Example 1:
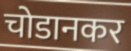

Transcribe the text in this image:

चोडानकर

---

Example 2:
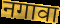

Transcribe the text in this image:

नगावा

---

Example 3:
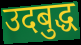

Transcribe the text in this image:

उदबुद्ध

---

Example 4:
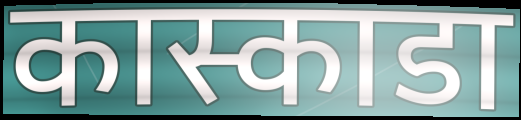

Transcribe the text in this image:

कास्काडा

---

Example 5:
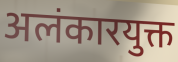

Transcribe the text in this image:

अलंकारयुक्त